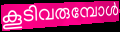
കൂടിവരുമ്പോൾ